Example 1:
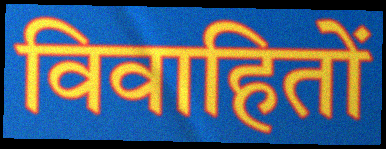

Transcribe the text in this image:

विवाहितों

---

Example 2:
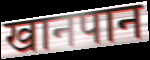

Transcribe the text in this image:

खानपान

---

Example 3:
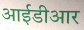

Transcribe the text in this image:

आईडीआर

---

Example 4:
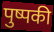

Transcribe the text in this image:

पुष्पकी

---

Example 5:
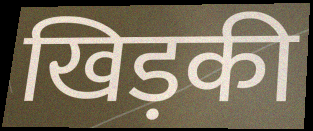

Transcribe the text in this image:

खिड़की